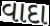
વાદા